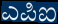
ಎಪಿಐ